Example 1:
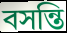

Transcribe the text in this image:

বসন্তি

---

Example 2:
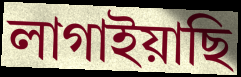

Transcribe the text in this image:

লাগাইয়াছি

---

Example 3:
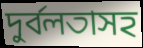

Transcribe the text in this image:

দুর্বলতাসহ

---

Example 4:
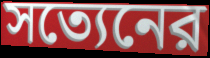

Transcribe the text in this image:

সত্যেনের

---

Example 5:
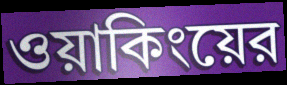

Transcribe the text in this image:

ওয়াকিংয়ের